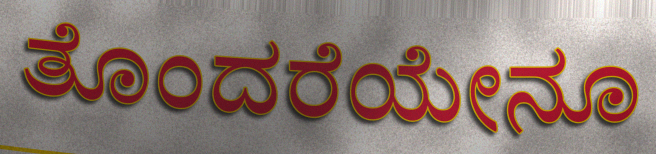
ತೊಂದರೆಯೇನೂ